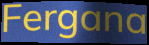
Fergana